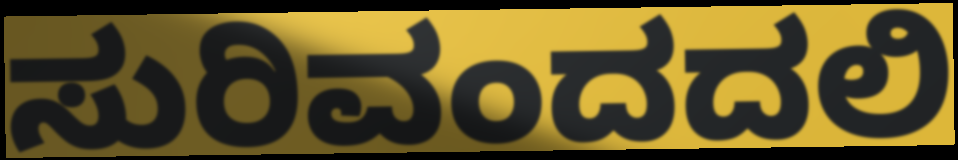
ಸುರಿವಂದದಲಿ